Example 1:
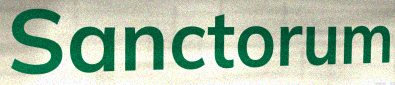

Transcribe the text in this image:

Sanctorum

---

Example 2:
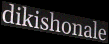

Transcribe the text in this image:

dikishonale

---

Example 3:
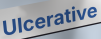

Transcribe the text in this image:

Ulcerative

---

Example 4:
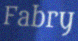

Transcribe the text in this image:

Fabry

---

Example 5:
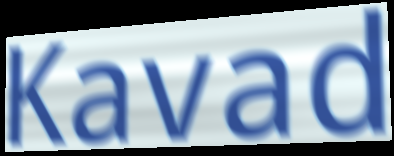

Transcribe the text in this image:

Kavad